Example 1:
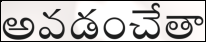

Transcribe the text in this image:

అవడంచేతా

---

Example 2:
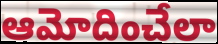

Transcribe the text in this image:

ఆమోదించేలా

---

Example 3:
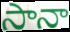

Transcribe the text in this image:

సానా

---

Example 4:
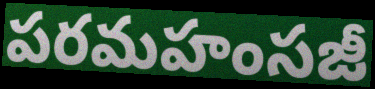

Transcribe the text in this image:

పరమహంసజీ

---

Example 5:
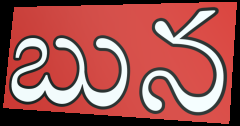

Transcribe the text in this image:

బున